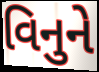
વિનુને